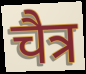
चैत्र